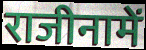
राजीनामें